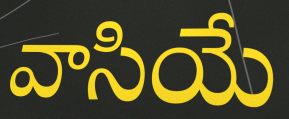
వాసియే